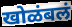
खोळंबलं